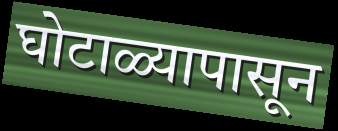
घोटाळ्यापासून